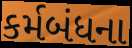
કર્મબંધના